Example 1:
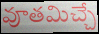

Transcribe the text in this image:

వూతమిచ్చే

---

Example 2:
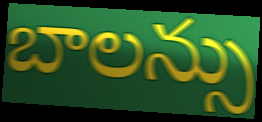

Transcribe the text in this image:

బాలన్సు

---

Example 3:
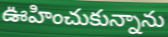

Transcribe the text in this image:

ఊహించుకున్నాను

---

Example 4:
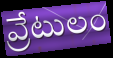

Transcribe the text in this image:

వ్రేటులం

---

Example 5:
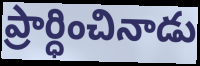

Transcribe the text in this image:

ప్రార్ధించినాడు